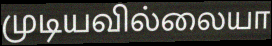
முடியவில்லையா